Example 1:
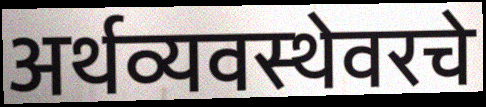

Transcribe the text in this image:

अर्थव्यवस्थेवरचे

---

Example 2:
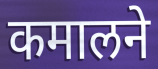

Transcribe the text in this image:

कमालने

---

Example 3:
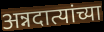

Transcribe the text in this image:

अन्नदात्यांच्या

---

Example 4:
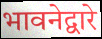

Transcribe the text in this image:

भावनेद्वारे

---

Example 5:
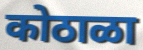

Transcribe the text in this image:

कोठाळा